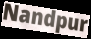
Nandpur